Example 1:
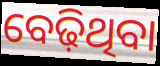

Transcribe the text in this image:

ବେଢ଼ିଥିବା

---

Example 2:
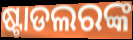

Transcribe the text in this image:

ଷ୍ଟାଡଲରଙ୍କ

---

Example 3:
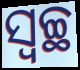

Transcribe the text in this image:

ସ୍ଵଚ୍ଛ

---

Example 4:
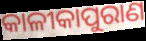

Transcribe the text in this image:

କାଳୀକାପୁରାଣ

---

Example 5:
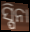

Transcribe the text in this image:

ସ୍ପିନା